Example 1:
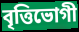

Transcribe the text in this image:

বৃত্তিভোগী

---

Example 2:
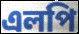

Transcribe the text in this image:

এলপি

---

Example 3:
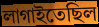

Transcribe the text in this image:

লাগাইতেছিল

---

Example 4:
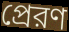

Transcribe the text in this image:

প্রেরণ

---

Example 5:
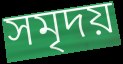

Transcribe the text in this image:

সমৃদয়